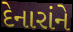
દેનારાંને